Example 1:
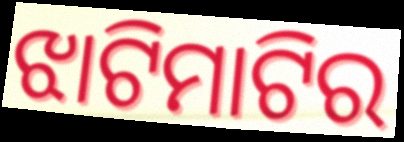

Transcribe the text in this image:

ଝାଟିମାଟିର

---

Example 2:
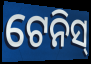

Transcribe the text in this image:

ଟେନିସ୍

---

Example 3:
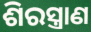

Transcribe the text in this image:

ଶିରସ୍ତ୍ରାଣ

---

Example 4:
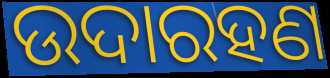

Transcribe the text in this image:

ଉଦାରହଣ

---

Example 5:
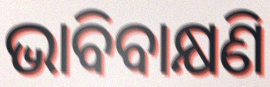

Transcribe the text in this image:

ଭାବିବାକ୍ଷଣି